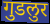
गुडलुर